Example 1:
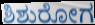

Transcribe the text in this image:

ಶಿಶುರೋಗ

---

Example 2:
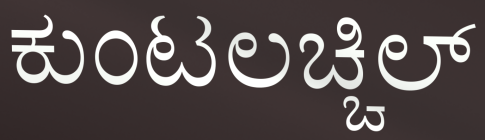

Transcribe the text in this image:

ಕುಂಟಲಚ್ಚಿಲ್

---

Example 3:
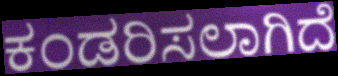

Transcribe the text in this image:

ಕಂಡರಿಸಲಾಗಿದೆ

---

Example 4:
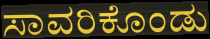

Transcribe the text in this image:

ಸಾವರಿಕೊಂಡು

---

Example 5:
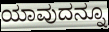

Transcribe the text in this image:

ಯಾವುದನ್ನೂ